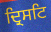
ਦ੍ਰਿਸਟਿ